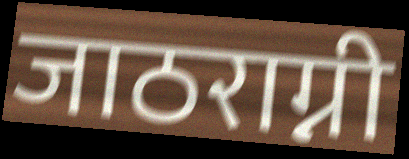
जाठराग्नी